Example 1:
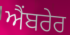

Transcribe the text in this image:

ਐਂਬਰੇਰ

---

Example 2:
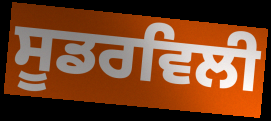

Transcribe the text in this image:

ਸੂਡਰਵਿਲੀ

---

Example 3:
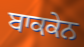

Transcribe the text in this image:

ਬਾਕਕੇਨ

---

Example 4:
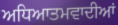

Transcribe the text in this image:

ਅਧਿਆਤਮਵਾਦੀਆਂ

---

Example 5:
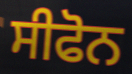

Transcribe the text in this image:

ਸੀਫੋਨ